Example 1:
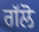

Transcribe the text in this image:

ਗੱਲੋ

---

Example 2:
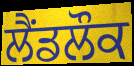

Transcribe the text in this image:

ਲੈਂਡਲੌਕ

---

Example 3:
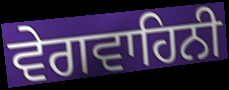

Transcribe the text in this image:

ਵੇਗਵਾਹਿਨੀ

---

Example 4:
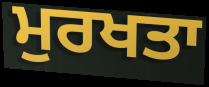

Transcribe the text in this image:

ਮੁਰਖਤਾ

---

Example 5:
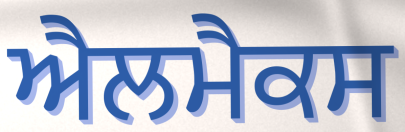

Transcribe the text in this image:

ਐਲਮੈਕਸ